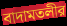
বাদামতলীর